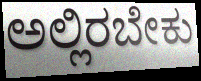
ಅಲ್ಲಿರಬೇಕು